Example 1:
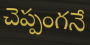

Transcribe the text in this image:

చెప్పంగనే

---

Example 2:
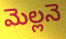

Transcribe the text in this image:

మెల్లనె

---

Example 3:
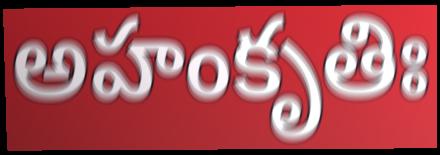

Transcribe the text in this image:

అహంకృతిః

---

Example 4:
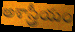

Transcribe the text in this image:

అశాస్త్రీయం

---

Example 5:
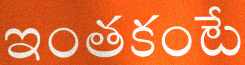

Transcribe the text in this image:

ఇంతకంటే